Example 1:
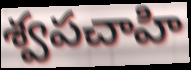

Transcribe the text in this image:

శ్వపచాహి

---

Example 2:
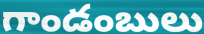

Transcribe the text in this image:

గాండంబులు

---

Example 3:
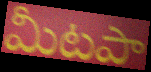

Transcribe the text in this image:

మీటపా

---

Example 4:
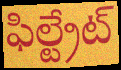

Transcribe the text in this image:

ఫిల్ట్రేట్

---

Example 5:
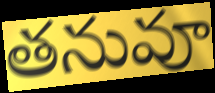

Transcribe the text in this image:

తనువూ